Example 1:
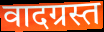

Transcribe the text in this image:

वादग्रस्त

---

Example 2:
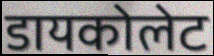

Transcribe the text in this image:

डायकोलेट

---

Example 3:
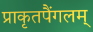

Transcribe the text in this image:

प्राकृतपैंगलम्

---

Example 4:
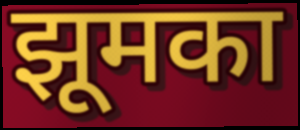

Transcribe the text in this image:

झूमका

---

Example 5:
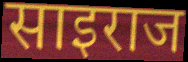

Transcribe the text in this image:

साइराज